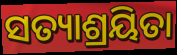
ସତ୍ୟାଶ୍ରୟିତା